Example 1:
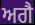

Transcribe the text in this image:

ਅਗੈ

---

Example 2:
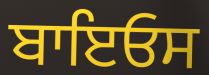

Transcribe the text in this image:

ਬਾਇਓਸ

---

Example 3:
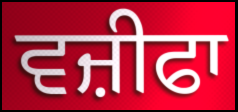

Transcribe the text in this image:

ਵਜ਼ੀਫਾ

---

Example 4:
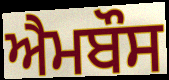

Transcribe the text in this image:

ਐਮਬੌਸ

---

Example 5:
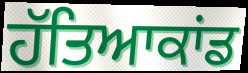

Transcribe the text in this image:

ਹੱਤਿਆਕਾਂਡ